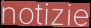
notizie